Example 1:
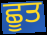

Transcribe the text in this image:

ਛੂਤ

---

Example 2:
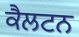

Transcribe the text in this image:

ਕੈਲਟਨ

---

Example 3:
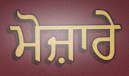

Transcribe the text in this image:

ਮੋਜ਼ਾਰੇ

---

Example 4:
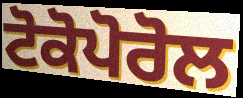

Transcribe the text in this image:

ਟੋਕੋਪੋਰੋਲ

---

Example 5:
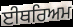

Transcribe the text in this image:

ਈਥਰਿਅਮ